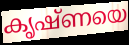
കൃഷ്ണയെ